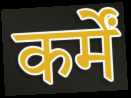
कर्में